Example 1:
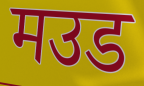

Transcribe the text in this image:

मउड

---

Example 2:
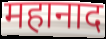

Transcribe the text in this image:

महानाद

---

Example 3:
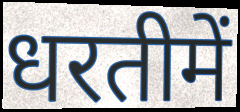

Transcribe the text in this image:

धरतीमें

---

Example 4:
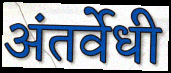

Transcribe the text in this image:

अंतर्वेधी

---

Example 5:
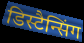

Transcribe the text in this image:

डिस्टैन्सिंग